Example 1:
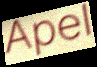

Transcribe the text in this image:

Apel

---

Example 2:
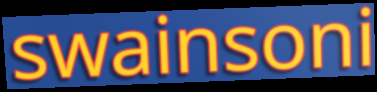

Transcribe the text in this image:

swainsoni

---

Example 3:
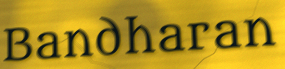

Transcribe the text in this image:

Bandharan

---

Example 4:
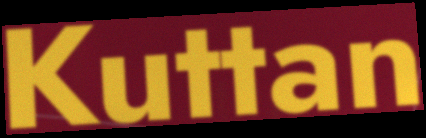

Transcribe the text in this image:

Kuttan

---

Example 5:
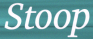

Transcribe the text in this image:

Stoop